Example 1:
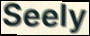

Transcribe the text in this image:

Seely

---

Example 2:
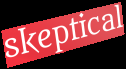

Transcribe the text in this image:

skeptical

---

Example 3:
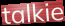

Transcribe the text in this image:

talkie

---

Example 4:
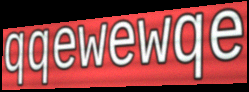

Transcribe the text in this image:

qqewewqe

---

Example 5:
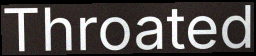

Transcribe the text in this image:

Throated